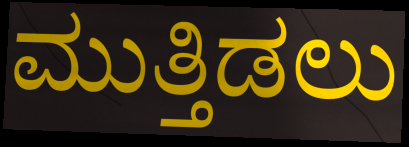
ಮುತ್ತಿಡಲು